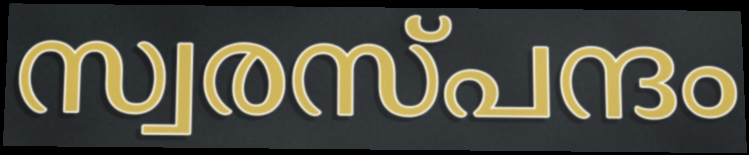
സ്വരസ്പന്ദം